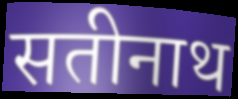
सतीनाथ